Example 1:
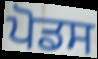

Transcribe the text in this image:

ਪੋਡਸ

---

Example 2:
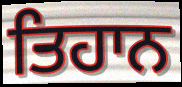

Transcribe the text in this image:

ਤਿਹਾਨ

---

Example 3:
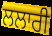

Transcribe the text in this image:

ਲਲਾਰੀ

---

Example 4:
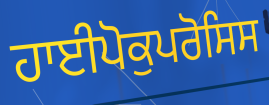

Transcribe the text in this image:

ਹਾਈਪੋਕੁਪਰੋਸਿਸ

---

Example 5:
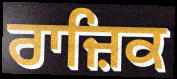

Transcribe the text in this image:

ਰਾਜ਼ਿਕ